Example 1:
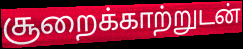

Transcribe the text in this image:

சூறைக்காற்றுடன்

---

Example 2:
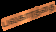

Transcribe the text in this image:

பலகாரத்தை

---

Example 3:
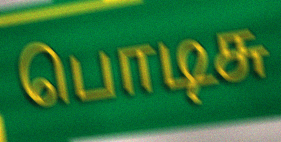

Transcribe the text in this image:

பொடிசு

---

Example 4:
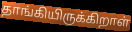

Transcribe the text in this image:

தாங்கியிருக்கிறாள்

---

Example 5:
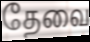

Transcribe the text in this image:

தேவை